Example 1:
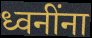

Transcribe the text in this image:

ध्वनींना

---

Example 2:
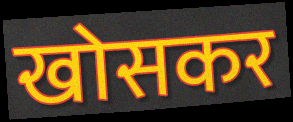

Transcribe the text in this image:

खोसकर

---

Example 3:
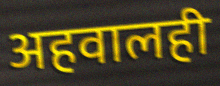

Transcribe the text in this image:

अहवालही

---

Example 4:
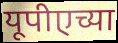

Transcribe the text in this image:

यूपीएच्या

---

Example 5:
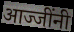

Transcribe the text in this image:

आज्जींनी